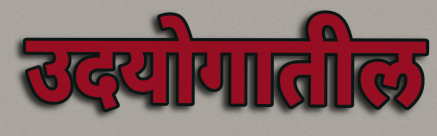
उदयोगातील